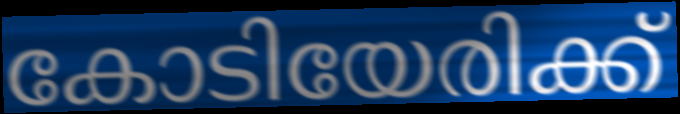
കോടിയേരിക്ക്